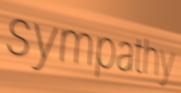
sympathy